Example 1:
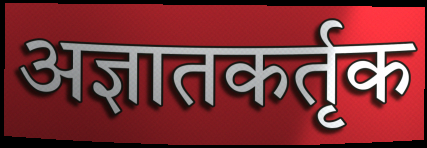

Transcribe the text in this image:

अज्ञातकर्तृक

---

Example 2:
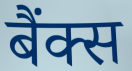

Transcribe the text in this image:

बैंक्स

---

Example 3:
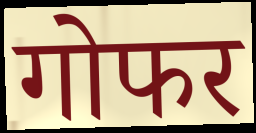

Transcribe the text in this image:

गोफर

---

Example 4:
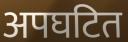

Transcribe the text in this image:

अपघटित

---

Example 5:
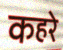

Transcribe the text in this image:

कहरे